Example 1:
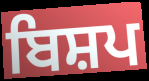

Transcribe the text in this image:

ਬਿਸ਼ਪ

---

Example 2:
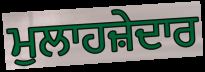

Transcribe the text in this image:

ਮੁਲਾਹਜ਼ੇਦਾਰ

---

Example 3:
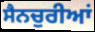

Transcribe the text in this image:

ਸੈਨਚੁਰੀਆਂ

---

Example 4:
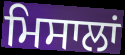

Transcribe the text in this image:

ਮਿਸਾਲਾਂ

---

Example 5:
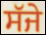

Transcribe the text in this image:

ਸੱਜੇ